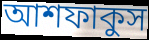
আশফাকুস